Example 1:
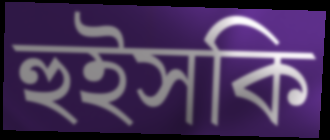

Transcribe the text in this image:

হুইসকি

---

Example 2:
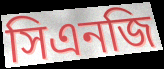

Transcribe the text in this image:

সিএনজি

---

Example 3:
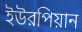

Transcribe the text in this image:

ইউরপিয়ান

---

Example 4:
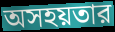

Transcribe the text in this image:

অসহয়তার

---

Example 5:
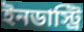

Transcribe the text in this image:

ইনডাস্ট্রি